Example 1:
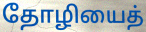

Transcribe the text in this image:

தோழியைத்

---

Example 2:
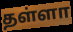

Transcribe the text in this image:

தள்ளா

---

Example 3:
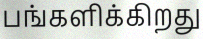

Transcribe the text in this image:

பங்களிக்கிறது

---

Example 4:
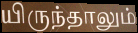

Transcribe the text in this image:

யிருந்தாலும்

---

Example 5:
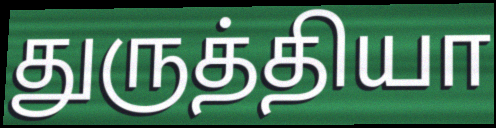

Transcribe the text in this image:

துருத்தியா